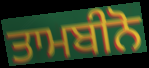
ਤਾਮਬੀਨੋ